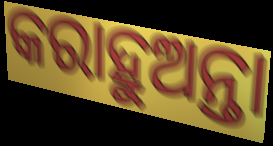
କରାହୁଅନ୍ତା